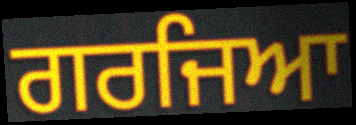
ਗਰਜਿਆ